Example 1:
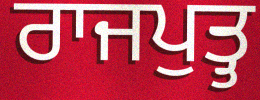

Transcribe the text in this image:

ਰਾਜਪੁਤ੍ਤ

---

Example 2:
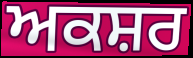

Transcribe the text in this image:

ਅਕਸ਼ਰ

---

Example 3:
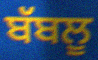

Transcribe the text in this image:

ਬੱਬਲੂ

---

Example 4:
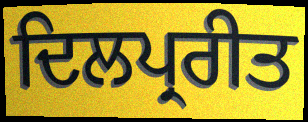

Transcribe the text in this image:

ਦਿਲਪ੍ਰਰੀਤ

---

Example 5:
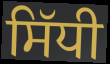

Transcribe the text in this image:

ਸਿੱਧੀ